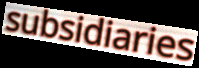
subsidiaries